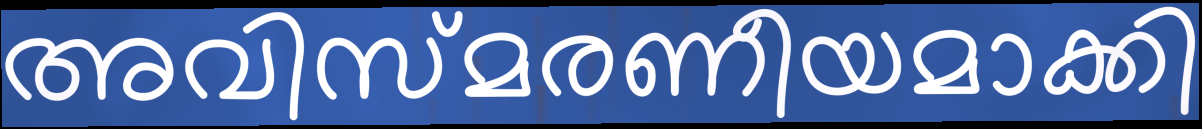
അവിസ്മരണീയമാക്കി